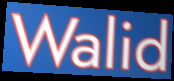
Walid